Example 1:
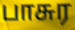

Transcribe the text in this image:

பாசுர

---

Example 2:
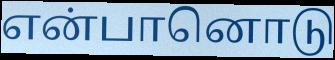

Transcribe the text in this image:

என்பானொடு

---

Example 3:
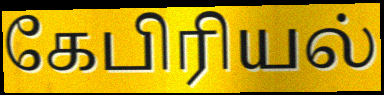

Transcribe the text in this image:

கேபிரியல்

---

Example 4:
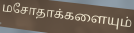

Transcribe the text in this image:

மசோதாக்களையும்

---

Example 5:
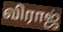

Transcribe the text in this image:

விராஜ்